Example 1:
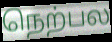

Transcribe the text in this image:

நெற்பல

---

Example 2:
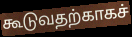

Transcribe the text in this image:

கூடுவதற்காகச்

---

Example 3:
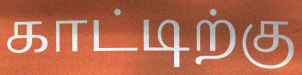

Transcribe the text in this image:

காட்டிற்கு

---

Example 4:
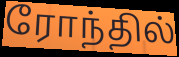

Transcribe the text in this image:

ரோந்தில்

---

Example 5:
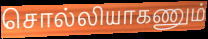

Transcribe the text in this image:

சொல்லியாகணும்